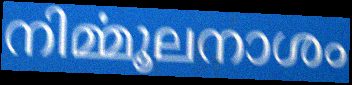
നിൎമ്മൂലനാശം